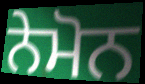
ਨੇਮੋਨ